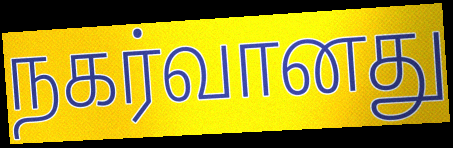
நகர்வானது